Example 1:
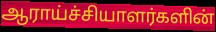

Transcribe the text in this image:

ஆராய்ச்சியாளர்களின்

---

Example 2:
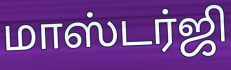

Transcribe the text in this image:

மாஸ்டர்ஜி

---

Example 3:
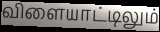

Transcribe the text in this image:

விளையாட்டிலும்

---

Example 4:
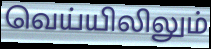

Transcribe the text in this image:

வெய்யிலிலும்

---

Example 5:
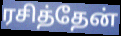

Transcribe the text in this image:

ரசித்தேன்